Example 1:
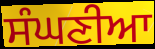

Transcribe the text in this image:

ਸੰਘਣੀਆ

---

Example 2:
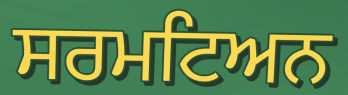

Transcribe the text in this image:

ਸਰਮਟਿਅਨ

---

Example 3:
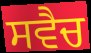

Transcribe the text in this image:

ਸਵੈਚ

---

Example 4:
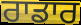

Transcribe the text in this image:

ਰਾਡਾਰ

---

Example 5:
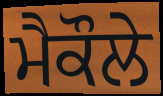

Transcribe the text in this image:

ਮੈਕੌਲੇ